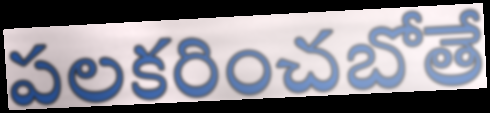
పలకరించబోతే